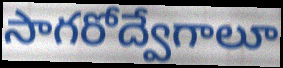
సాగరోద్వేగాలూ